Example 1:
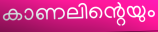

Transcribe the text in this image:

കാണലിന്റെയും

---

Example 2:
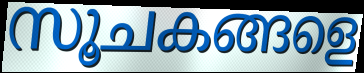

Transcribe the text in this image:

സൂചകങ്ങളെ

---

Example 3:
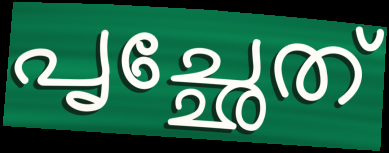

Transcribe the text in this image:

പൃച്ഛേത്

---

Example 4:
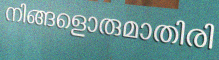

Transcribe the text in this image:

നിങ്ങളൊരുമാതിരി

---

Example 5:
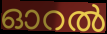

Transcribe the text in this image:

ഓറൽ